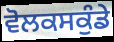
ਵੋਲਕਸਕੁੰਡੇ